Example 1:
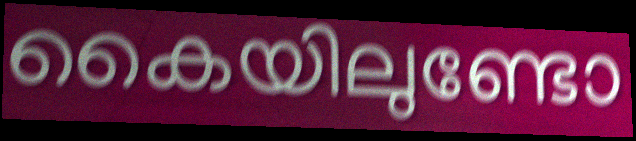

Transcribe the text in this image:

കൈയിലുണ്ടോ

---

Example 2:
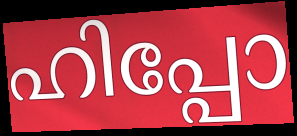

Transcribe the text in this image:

ഹിപ്പോ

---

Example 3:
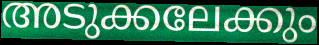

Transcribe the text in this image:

അടുക്കലേക്കും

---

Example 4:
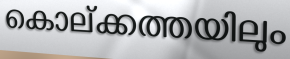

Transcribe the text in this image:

കൊല്ക്കത്തയിലും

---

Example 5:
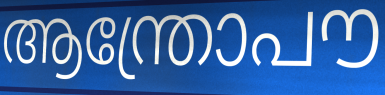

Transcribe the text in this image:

ആന്ത്രോപൗ